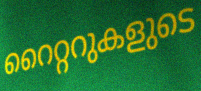
റൈറ്ററുകളുടെ